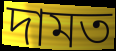
দামত